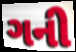
ગની